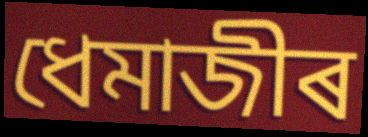
ধেমাজীৰ